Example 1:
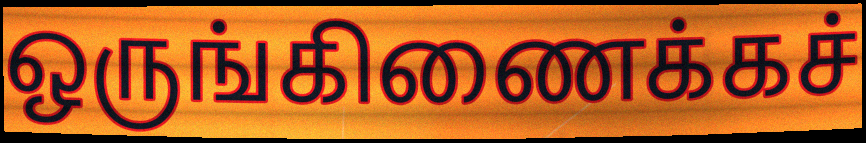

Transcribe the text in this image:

ஒருங்கிணைக்கச்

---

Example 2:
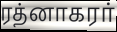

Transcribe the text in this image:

ரத்னாகரர்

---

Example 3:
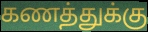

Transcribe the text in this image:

கணத்துக்கு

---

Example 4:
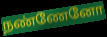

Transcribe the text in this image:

நண்ணேனோ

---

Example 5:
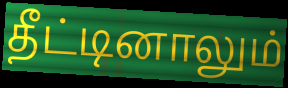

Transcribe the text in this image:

தீட்டினாலும்